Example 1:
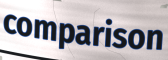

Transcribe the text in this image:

comparison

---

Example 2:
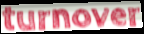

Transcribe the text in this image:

turnover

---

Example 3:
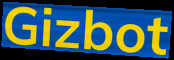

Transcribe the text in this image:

Gizbot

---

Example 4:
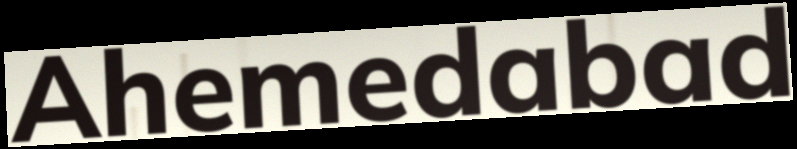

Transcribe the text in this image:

Ahemedabad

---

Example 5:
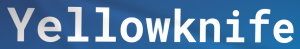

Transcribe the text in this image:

Yellowknife